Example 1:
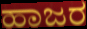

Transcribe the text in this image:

ಹಾಜರ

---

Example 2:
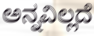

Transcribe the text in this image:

ಅನ್ನವಿಲ್ಲದೆ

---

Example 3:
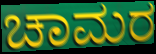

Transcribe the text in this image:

ಚಾಮರ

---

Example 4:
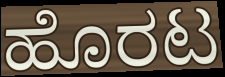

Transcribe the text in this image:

ಹೊರಟ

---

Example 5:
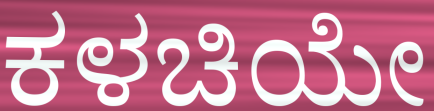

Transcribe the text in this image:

ಕಳಚಿಯೇ